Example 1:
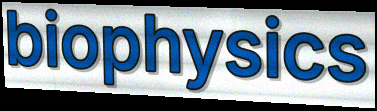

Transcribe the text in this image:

biophysics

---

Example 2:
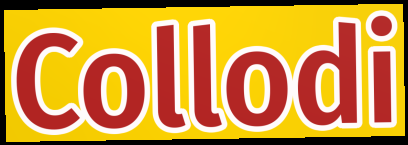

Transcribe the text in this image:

Collodi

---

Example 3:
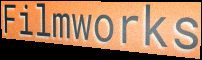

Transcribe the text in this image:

Filmworks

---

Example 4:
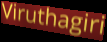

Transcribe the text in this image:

Viruthagiri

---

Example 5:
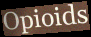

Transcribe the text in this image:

Opioids